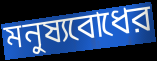
মনুষ্যবোধের